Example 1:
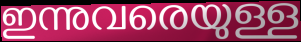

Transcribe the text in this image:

ഇന്നുവരെയുള്ള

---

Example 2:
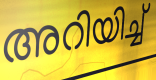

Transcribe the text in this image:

അറിയിച്ച്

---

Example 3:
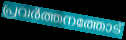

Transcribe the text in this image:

പ്രവർത്തനത്തോട്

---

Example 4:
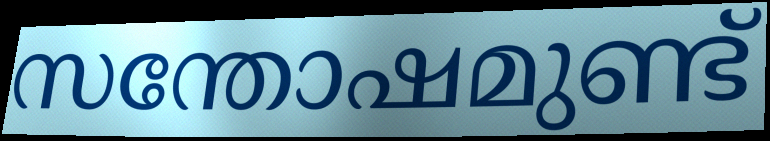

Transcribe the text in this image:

സന്തോഷമുണ്ട്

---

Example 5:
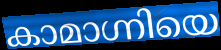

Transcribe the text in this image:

കാമാഗ്നിയെ